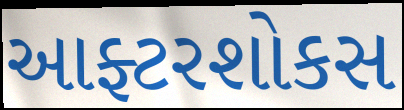
આફ્ટરશોકસ